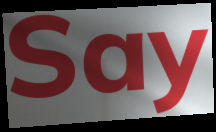
Say